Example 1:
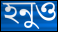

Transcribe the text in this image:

হনুও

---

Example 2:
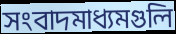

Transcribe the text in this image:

সংবাদমাধ্যমগুলি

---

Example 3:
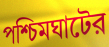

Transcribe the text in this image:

পশ্চিমঘাটের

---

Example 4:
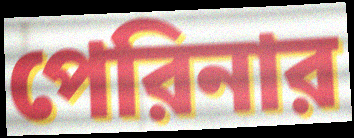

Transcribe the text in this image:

পেরিনার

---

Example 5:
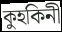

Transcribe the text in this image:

কুহকিনী